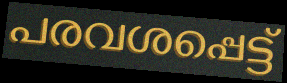
പരവശപ്പെട്ട്